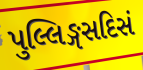
પુલ્લિઙ્ગસદિસં